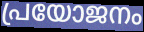
പ്രയോജനം